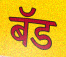
बॅड